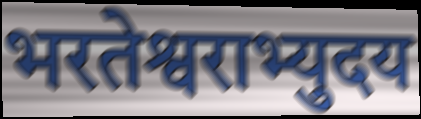
भरतेश्वराभ्युदय